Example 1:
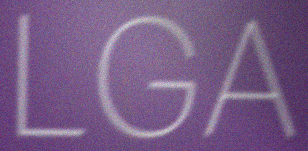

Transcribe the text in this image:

LGA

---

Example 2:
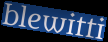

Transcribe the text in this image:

blewitti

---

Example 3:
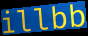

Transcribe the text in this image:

illbb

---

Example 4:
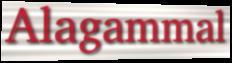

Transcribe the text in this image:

Alagammal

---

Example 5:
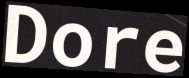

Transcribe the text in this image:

Dore